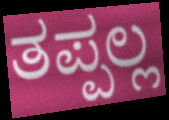
ತಪ್ಪಲ್ಲ